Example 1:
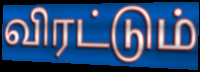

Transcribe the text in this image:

விரட்டும்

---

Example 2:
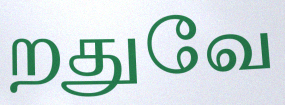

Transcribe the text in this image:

றதுவே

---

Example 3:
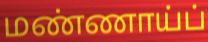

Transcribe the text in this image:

மண்ணாய்ப்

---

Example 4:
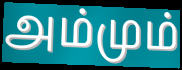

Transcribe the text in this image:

அம்மும்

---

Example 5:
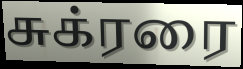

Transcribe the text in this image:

சுக்ரரை